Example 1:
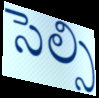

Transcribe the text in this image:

సెల్సి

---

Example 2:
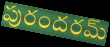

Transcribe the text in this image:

పురందరమ్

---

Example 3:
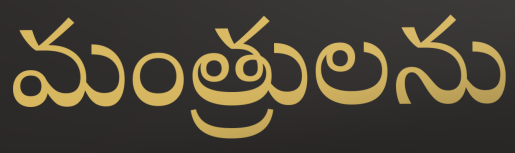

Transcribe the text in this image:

మంత్రులను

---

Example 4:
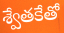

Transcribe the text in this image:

శ్వేతకేతో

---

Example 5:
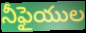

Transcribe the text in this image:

నీఫైయుల